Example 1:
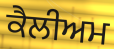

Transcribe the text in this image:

ਕੈਲੀਅਮ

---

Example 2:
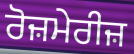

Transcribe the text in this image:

ਰੋਜ਼ਮੇਰੀਜ਼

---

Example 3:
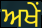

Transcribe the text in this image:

ਅਖੇਂ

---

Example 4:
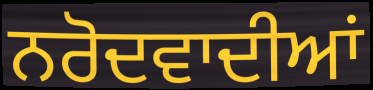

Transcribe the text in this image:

ਨਰੋਦਵਾਦੀਆਂ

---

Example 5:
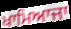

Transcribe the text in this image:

ਖਾਮਿਆਜਾ